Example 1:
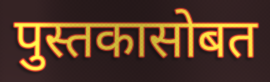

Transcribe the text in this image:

पुस्तकासोबत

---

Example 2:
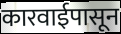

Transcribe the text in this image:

कारवाईपासून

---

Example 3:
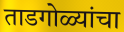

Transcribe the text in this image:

ताडगोळ्यांचा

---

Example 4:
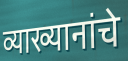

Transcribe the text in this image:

व्याख्यानांचे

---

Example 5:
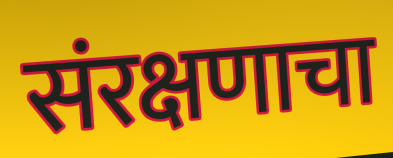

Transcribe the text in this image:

संरक्षणाचा